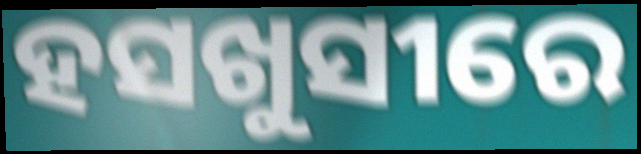
ହସଖୁସୀରେ